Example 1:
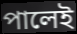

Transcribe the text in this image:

পালেই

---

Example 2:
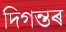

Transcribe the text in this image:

দিগন্তৰ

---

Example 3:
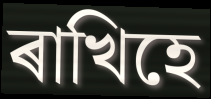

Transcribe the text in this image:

ৰাখিহে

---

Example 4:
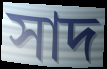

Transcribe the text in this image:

সাদ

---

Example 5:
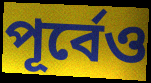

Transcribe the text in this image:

পূৰ্বেও